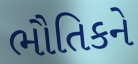
ભૌતિકને